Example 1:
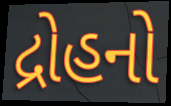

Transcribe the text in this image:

દ્રોહનો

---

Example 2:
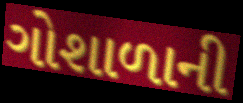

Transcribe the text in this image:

ગોશાળાની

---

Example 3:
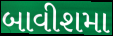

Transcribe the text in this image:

બાવીશમા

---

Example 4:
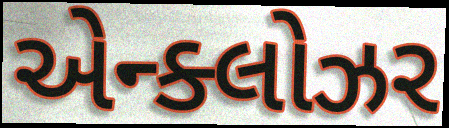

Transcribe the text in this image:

એન્ક્લોઝર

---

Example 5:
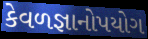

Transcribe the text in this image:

કેવળજ્ઞાનોપયોગ